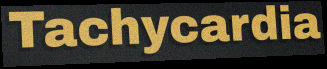
Tachycardia